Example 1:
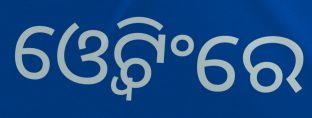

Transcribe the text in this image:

ଓ୍ୱେଟିଂରେ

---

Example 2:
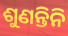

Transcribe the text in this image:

ଶୁଣନ୍ତିନି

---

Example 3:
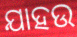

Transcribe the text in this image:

ଯାହଉ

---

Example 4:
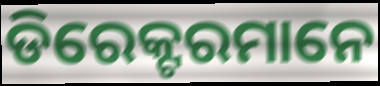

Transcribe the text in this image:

ଡିରେକ୍ଟରମାନେ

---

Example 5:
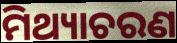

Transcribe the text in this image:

ମିଥ୍ୟାଚରଣ